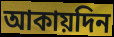
আকায়দিন